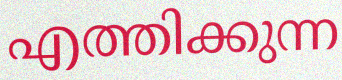
എത്തിക്കുന്ന